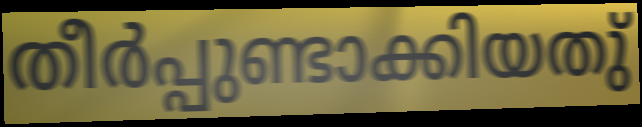
തീർപ്പുണ്ടാക്കിയതു്